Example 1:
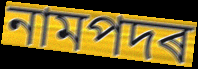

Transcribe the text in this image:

নামপদৰ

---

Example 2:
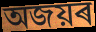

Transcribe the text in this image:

অজয়ৰ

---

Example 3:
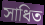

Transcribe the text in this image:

সাধিত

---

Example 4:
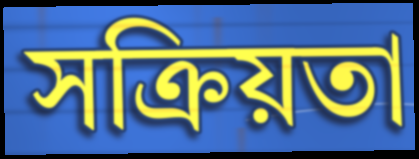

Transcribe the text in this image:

সক্ৰিয়তা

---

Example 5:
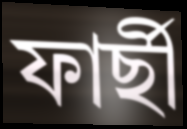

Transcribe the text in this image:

ফাৰ্ছী